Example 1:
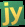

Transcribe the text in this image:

jy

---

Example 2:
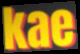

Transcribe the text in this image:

kae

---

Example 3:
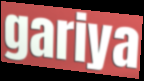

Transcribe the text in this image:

gariya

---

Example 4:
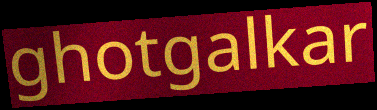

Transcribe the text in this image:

ghotgalkar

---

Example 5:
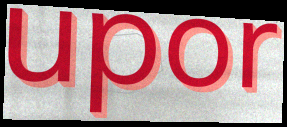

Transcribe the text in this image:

upor